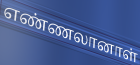
எண்ணலானாள்